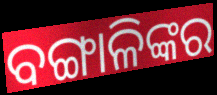
ବଙ୍ଗାଳିଙ୍କର